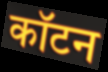
कॉटन